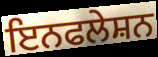
ਇਨਫਲੇਸ਼ਨ